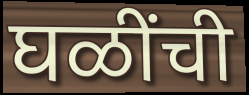
घळींची